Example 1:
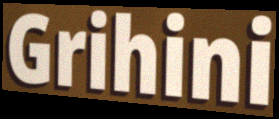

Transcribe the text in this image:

Grihini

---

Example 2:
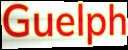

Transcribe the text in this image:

Guelph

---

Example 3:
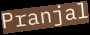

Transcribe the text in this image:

Pranjal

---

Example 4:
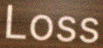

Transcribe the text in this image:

Loss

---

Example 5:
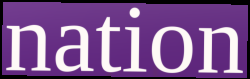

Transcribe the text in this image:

nation